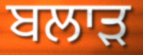
ਬਲਾੜ